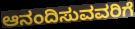
ಆನಂದಿಸುವವರಿಗೆ